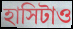
হাসিটাও